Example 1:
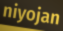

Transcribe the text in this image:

niyojan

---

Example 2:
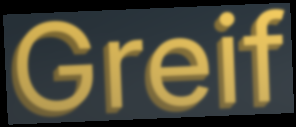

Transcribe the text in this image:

Greif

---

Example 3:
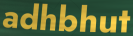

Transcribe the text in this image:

adhbhut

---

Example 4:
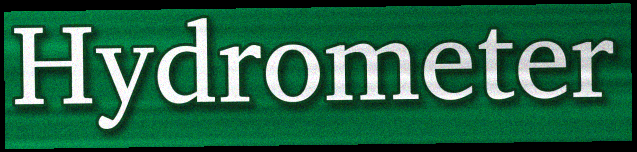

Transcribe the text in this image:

Hydrometer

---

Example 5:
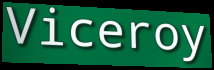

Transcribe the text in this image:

Viceroy